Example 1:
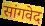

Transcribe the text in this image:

सांगवेद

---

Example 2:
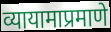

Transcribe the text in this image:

व्यायामाप्रमाणे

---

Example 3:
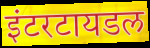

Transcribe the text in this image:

इंटरटायडल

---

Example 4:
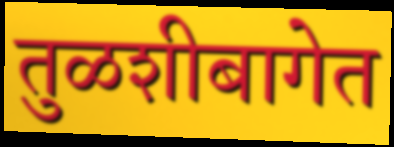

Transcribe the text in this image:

तुळशीबागेत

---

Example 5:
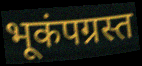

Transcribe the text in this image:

भूकंपग्रस्त